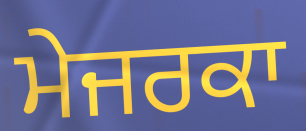
ਮੇਜਰਕਾ